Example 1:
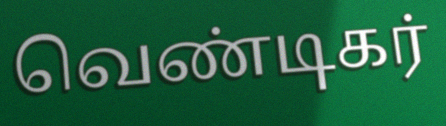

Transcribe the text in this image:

வெண்டிகர்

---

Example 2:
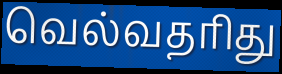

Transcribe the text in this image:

வெல்வதரிது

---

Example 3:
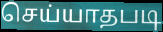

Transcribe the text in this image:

செய்யாதபடி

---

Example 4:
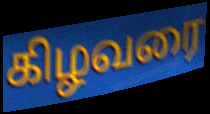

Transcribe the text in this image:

கிழவரை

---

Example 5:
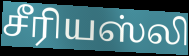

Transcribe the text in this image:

சீரியஸ்லி